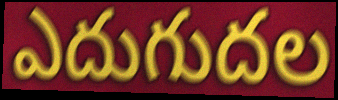
ఎదుగుదల